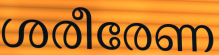
ശരീരേണ